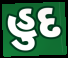
હુદ